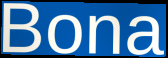
Bona